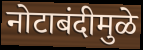
नोटाबंदीमुळे